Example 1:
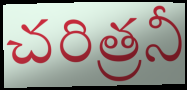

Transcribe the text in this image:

చరిత్రనీ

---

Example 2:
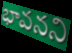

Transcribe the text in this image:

భావనని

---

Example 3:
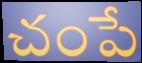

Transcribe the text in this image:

చంపే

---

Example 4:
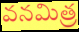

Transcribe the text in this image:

వనమిత్ర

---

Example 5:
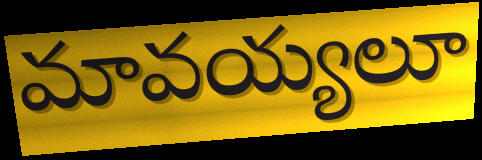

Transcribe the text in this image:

మావయ్యలూ